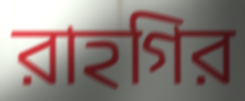
রাহগির